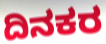
ದಿನಕರ